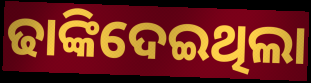
ଢାଙ୍କିଦେଇଥିଲା